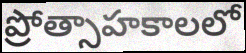
ప్రోత్సాహకాలలో